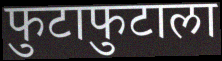
फुटाफुटाला